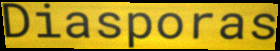
Diasporas